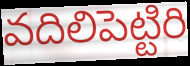
వదిలిపెట్టిరి